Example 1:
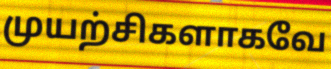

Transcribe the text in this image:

முயற்சிகளாகவே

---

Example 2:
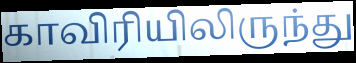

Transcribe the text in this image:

காவிரியிலிருந்து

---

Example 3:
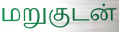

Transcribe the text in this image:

மறுகுடன்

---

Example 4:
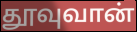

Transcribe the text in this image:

தூவுவான்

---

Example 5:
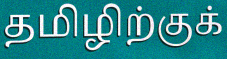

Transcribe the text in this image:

தமிழிற்குக்